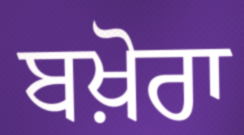
ਬਖ਼ੋਰਾ